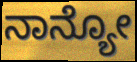
ನಾನ್ಯೋ